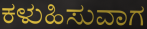
ಕಳುಹಿಸುವಾಗ